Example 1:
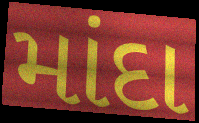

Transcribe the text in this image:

માંદા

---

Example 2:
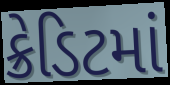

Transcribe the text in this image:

ક્રેડિટમાં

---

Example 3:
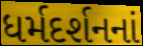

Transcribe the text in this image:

ધર્મદર્શનનાં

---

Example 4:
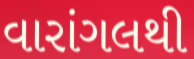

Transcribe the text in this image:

વારાંગલથી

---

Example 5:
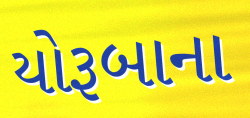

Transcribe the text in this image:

યોરૂબાના